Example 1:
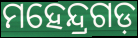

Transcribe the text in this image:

ମହେନ୍ଦ୍ରଗଡ଼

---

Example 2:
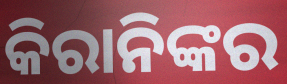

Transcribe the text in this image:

କିରାନିଙ୍କର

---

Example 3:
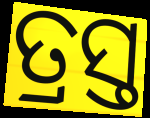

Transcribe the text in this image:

ତ୍ରସ୍ତ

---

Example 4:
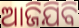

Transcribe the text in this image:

ଆଜିଯିବି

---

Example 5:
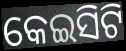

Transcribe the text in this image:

କେଇସିଟି